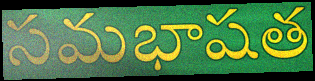
సమభాషత